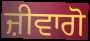
ਜ਼ੀਵਾਗੋ